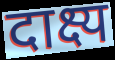
दाक्ष्य